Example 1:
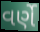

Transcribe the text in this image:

વર્ણે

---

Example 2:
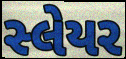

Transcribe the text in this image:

સ્લેયર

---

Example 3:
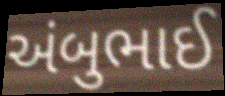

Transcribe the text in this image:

અંબુભાઈ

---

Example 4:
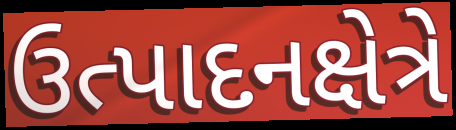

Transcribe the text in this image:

ઉત્પાદનક્ષેત્રે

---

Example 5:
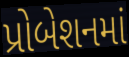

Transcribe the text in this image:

પ્રોબેશનમાં